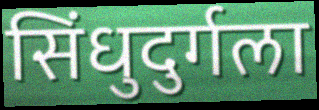
सिंधुदुर्गला